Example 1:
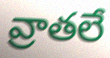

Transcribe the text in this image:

వ్రాతలే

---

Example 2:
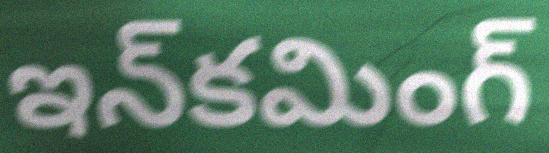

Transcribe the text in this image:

ఇన్‌కమింగ్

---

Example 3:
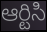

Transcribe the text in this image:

ఆర్టిసి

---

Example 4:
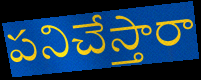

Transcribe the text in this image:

పనిచేస్తారా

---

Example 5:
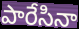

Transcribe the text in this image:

పారేసినా